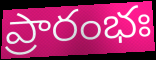
ప్రారంభః